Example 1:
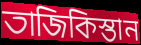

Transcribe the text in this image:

তাজিকিস্তান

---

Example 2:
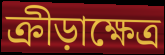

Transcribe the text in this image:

ক্রীড়াক্ষেত্র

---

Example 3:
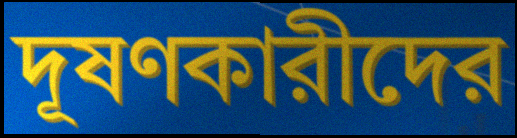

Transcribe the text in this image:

দূষণকারীদের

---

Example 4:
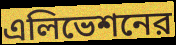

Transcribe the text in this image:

এলিভেশনের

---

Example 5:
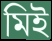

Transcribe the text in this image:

মিই